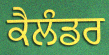
ਕੈਲੰਡਰ